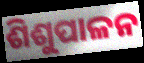
ଶିଶୁପାଳନ